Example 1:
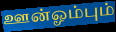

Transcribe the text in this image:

ஊன்ஓம்பும்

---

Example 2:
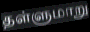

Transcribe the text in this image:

தள்ளுமாறு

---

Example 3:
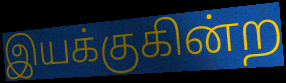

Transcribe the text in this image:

இயக்குகின்ற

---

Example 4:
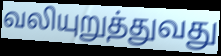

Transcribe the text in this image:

வலியுறுத்துவது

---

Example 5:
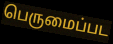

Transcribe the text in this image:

பெருமைப்பட